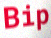
Bip